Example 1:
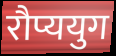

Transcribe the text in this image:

रौप्ययुग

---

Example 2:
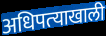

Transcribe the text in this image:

अधिपत्‍याखाली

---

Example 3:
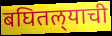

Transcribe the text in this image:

बघितल्याची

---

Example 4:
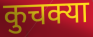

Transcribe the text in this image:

कुचक्या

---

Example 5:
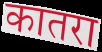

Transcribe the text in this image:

कातरा